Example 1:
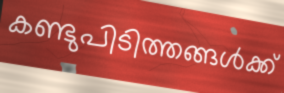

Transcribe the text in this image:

കണ്ടുപിടിത്തങ്ങൾക്ക്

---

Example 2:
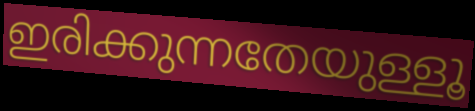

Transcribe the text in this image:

ഇരിക്കുന്നതേയുള്ളൂ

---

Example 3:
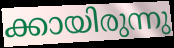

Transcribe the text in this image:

ക്കായിരുന്നു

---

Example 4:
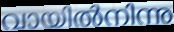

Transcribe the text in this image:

വായിൽനിന്നു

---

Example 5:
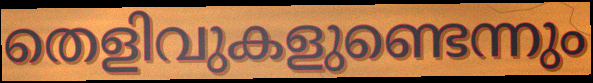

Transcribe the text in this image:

തെളിവുകളുണ്ടെന്നും